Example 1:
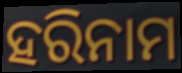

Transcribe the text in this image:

ହରିନାମ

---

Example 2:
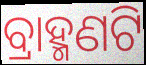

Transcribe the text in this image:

ବ୍ରାହ୍ମଣଟି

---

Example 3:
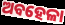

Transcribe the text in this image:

ଅବହେଳା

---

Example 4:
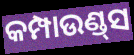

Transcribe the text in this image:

କମ୍ପାଉଣ୍ଡ୍‌ସ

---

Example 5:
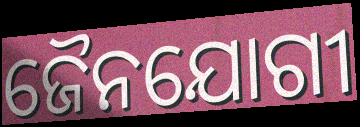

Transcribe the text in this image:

ଜୈନଯୋଗୀ